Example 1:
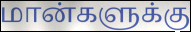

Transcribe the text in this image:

மான்களுக்கு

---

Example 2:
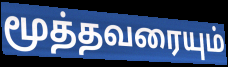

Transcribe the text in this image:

மூத்தவரையும்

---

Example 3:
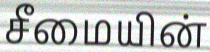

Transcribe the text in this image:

சீமையின்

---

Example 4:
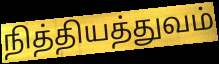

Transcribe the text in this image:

நித்தியத்துவம்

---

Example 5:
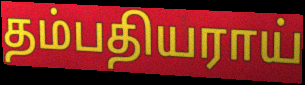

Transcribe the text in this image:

தம்பதியராய்